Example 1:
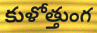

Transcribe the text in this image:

కుళోత్తుంగ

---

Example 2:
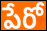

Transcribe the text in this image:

పేరో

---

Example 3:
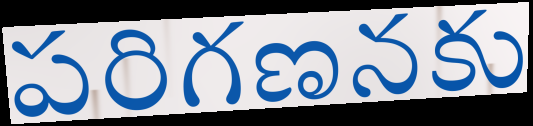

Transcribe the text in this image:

పరిగణనకు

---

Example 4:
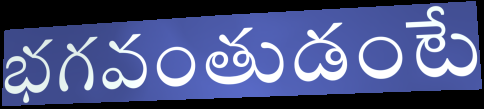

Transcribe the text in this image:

భగవంతుడంటే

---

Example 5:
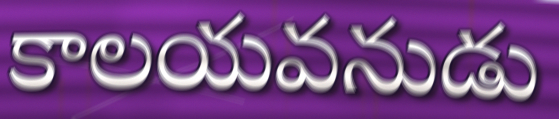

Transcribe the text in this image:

కాలయవనుడు